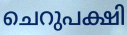
ചെറുപക്ഷി